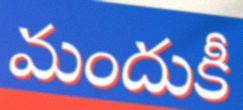
మందుకీ